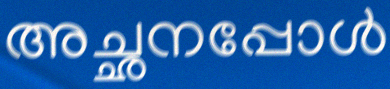
അച്ഛനപ്പോൾ